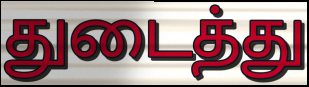
துடைத்து